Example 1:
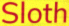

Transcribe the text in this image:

Sloth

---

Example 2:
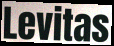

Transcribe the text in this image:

Levitas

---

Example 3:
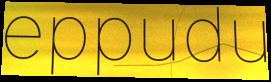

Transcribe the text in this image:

eppudu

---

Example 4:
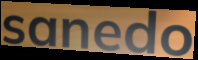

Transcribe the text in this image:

sanedo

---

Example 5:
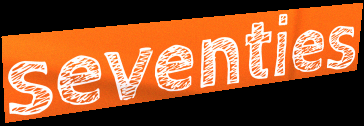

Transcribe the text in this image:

seventies